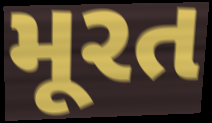
મૂરત